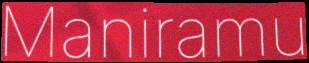
Maniramu